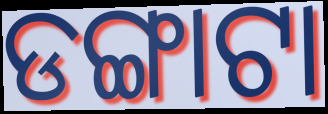
ଡଙ୍ଗାଟା